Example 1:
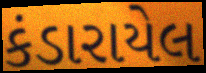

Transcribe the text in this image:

કંડારાયેલ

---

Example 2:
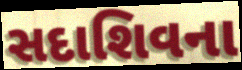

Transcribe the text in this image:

સદાશિવના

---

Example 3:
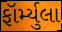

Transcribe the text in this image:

ફૉર્મ્યુલા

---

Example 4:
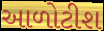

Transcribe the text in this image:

આળોટીશ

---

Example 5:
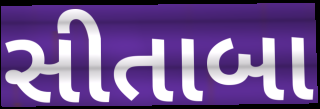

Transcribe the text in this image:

સીતાબા